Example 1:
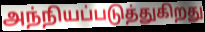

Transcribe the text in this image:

அந்நியப்படுத்துகிறது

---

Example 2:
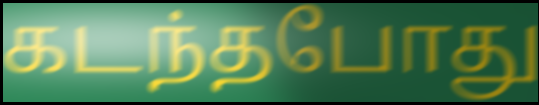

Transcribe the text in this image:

கடந்தபோது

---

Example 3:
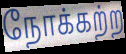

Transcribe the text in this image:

நோக்கற்ற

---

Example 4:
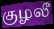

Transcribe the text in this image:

குழலீ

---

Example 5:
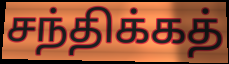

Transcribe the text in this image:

சந்திக்கத்